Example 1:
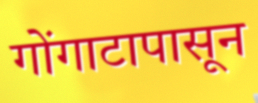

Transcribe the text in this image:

गोंगाटापासून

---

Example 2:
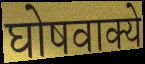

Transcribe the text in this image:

घोषवाक्ये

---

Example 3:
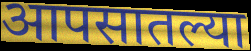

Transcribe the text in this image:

आपसातल्या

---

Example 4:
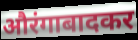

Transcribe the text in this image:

औरंगाबादकर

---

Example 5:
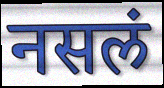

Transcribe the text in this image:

नसलं